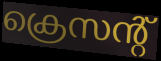
ക്രെസന്റ്